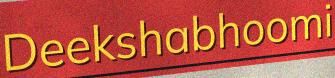
Deekshabhoomi